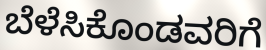
ಬೆಳೆಸಿಕೊಂಡವರಿಗೆ